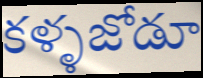
కళ్ళజోడూ